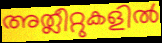
അത്ലീറ്റുകളിൽ